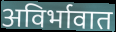
अविर्भावात